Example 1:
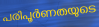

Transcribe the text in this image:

പരിപൂർണതയുടെ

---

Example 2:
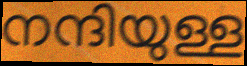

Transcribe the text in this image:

നന്ദിയുള്ള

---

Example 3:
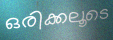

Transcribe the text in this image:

ഒരിക്കലൂടെ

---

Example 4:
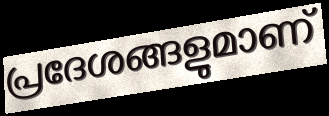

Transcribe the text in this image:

പ്രദേശങ്ങളുമാണ്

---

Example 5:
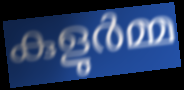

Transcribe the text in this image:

കുളുർമ്മ